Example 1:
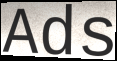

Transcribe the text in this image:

Ads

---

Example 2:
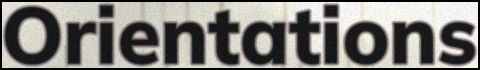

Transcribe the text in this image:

Orientations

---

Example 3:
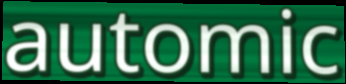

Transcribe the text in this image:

automic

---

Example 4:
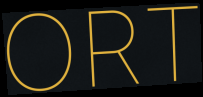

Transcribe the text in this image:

ORT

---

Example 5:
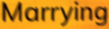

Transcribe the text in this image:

Marrying